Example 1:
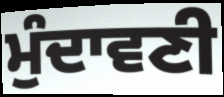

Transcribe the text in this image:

ਮੁੰਦਾਵਣੀ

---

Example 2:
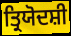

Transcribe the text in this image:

ਤ੍ਰਿਯੋਦਸ਼ੀ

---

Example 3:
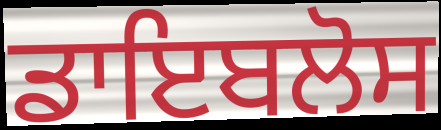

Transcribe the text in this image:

ਡਾਇਬਲੋਸ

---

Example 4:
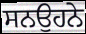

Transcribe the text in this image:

ਸਨਉਹਨੇ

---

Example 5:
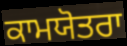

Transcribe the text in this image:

ਕਾਮਯੋਤਰਾ